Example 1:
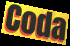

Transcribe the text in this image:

Coda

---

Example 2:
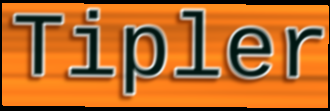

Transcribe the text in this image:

Tipler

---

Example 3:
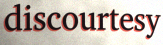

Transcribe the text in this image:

discourtesy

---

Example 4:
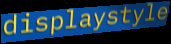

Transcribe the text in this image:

displaystyle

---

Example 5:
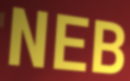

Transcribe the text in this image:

NEB